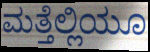
ಮತ್ತೆಲ್ಲಿಯೂ